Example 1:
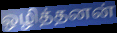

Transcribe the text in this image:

ஒழித்தனன்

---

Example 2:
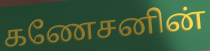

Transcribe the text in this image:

கணேசனின்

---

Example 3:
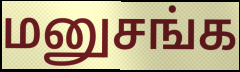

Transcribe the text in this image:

மனுசங்க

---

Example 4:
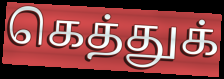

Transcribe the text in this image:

கெத்துக்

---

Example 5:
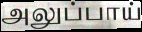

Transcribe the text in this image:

அலுப்பாய்